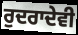
ਰੁਦਰਾਦੇਵੀ